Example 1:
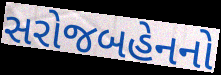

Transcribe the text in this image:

સરોજબહેનનો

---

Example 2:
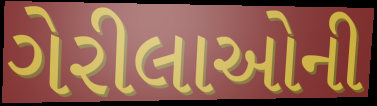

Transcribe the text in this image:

ગેરીલાઓની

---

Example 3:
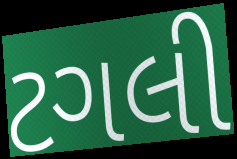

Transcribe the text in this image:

ટગલી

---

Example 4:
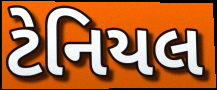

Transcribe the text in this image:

ટેનિયલ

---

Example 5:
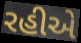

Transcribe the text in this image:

રહીએ